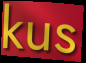
kus